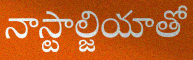
నాస్టాల్జియాతో